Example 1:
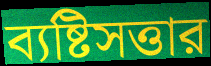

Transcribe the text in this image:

ব্যষ্টিসত্তার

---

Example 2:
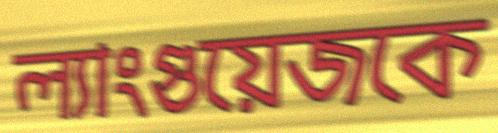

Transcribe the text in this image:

ল্যাংগুয়েজকে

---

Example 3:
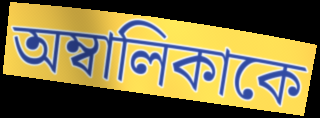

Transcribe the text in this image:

অম্বালিকাকে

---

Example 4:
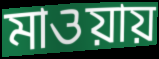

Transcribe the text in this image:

মাওয়ায়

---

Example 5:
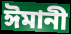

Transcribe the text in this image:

ঈমানী